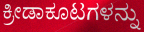
ಕ್ರೀಡಾಕೂಟಗಳನ್ನು